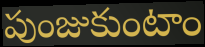
పుంజుకుంటాం